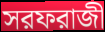
সরফরাজী